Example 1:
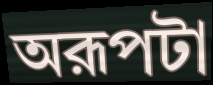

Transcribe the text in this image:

অরূপটা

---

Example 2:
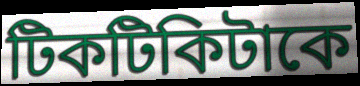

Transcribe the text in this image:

টিকটিকিটাকে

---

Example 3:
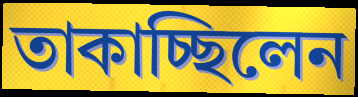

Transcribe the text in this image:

তাকাচ্ছিলেন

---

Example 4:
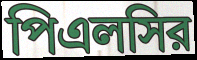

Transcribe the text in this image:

পিএলসির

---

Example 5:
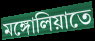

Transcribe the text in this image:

মঙ্গোলিয়াতে